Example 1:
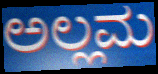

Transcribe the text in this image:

ಅಲ್ಲಮ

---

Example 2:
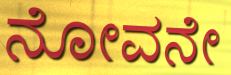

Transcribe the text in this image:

ನೋವನೇ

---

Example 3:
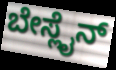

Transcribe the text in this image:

ಬೇಸ್ಲೈನ್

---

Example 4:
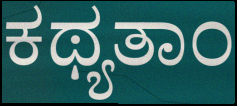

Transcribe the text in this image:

ಕಥ್ಯತಾಂ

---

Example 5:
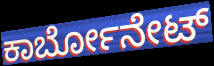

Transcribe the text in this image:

ಕಾರ್ಬೋನೇಟ್